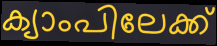
ക്യാംപിലേക്ക്